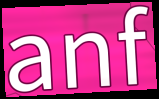
anf